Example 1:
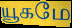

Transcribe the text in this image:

யூகமே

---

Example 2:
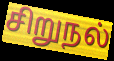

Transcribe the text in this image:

சிறுநல்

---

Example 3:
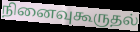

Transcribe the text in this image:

நினைவுகூருதல்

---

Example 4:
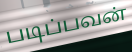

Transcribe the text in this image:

படிப்பவன்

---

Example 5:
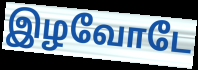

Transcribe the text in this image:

இழவோடே